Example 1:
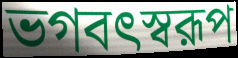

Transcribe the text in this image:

ভগবৎস্বরূপ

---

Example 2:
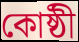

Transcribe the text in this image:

কোষ্ঠী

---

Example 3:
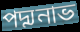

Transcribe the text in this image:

পদ্মনাভ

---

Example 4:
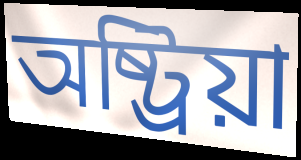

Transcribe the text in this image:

অষ্ট্রিয়া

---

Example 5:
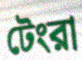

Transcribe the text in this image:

টেংরা